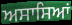
ਅਸਾਸਿਆਂ